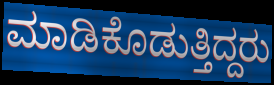
ಮಾಡಿಕೊಡುತ್ತಿದ್ದರು